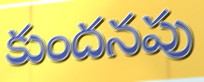
కుందనపు